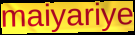
maiyariye